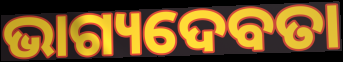
ଭାଗ୍ୟଦେବତା